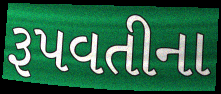
રૂપવતીના